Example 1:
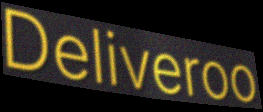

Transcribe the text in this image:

Deliveroo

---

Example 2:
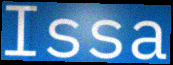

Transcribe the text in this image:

Issa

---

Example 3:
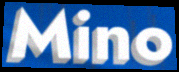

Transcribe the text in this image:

Mino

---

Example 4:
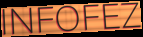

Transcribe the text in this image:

INFOFEZ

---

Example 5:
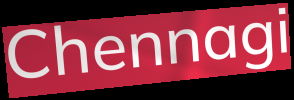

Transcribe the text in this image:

Chennagi